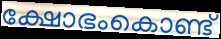
ക്ഷോഭംകൊണ്ട്